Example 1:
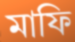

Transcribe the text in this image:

মাফি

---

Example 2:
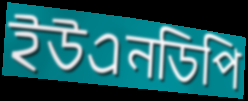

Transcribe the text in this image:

ইউএনডিপি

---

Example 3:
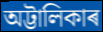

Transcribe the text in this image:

অট্টালিকাৰ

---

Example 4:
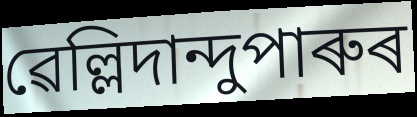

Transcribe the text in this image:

ৱেল্লিদান্দুপাৰুৰ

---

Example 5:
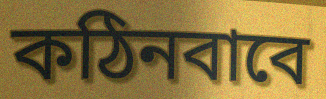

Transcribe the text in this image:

কঠিনবাবে